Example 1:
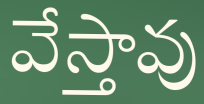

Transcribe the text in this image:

వేస్తావు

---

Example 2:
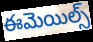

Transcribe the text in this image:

ఈమెయిల్స్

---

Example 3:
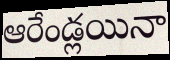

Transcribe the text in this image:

ఆరేండ్లయినా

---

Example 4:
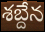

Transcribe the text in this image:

శబ్దేన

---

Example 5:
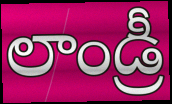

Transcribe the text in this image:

లాండ్రీ